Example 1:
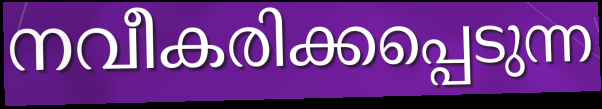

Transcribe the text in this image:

നവീകരിക്കപ്പെടുന്ന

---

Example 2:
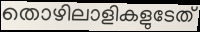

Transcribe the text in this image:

തൊഴിലാളികളുടേത്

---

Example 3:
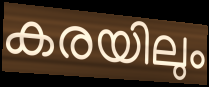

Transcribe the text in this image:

കരയിലും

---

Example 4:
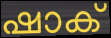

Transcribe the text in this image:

ഷാക്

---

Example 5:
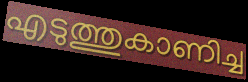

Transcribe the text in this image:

എടുത്തുകാണിച്ച